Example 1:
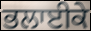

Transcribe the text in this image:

ਭਲਾਈਕੇ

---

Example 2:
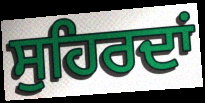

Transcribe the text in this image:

ਸੁਹਿਰਦਾਂ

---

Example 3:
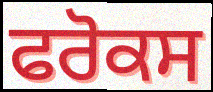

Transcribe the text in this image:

ਫਰੋਕਸ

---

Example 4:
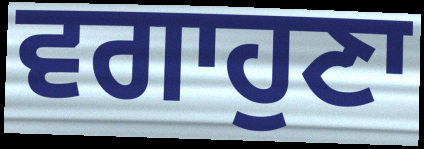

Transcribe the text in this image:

ਵਗਾਹੁਣਾ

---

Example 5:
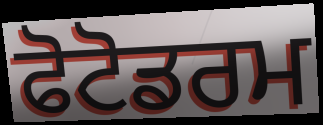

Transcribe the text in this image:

ਫੋਟੋਡਰਮ